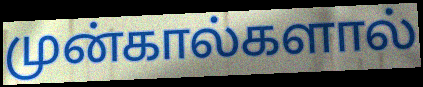
முன்கால்களால்